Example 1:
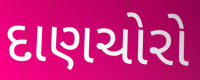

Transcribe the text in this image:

દાણચોરો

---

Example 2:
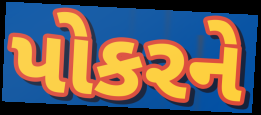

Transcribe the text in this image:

પોકરને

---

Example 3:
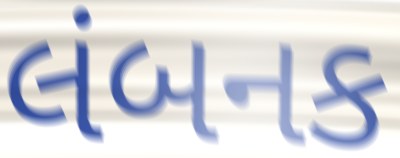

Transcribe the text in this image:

લંબનક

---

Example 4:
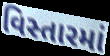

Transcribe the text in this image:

વિસ્તારમાં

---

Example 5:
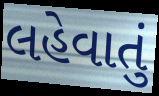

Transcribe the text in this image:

લહેવાતું